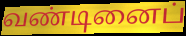
வண்டினைப்